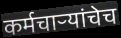
कर्मचाऱ्यांचेच